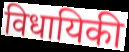
विधायिकी